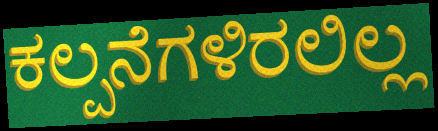
ಕಲ್ಪನೆಗಳಿರಲಿಲ್ಲ